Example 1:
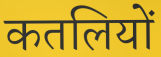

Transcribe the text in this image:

कतलियों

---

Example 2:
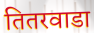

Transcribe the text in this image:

तितरवाडा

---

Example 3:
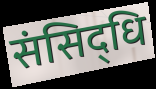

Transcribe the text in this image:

संसिद्धि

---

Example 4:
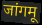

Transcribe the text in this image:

जांगमू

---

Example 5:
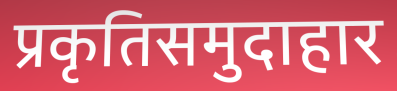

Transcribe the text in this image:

प्रकृतिसमुदाहार